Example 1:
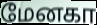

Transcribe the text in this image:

மேனகா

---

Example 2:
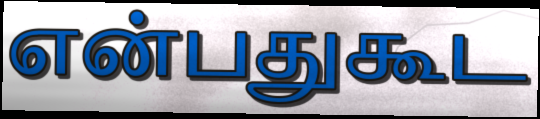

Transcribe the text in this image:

என்பதுகூட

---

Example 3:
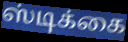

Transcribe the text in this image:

ஸ்டிக்கை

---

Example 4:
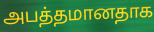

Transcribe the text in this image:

அபத்தமானதாக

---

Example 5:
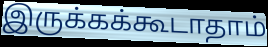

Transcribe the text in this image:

இருக்கக்கூடாதாம்